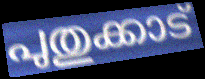
പുതുക്കാട്